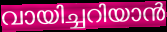
വായിച്ചറിയാൻ